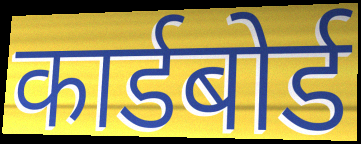
कार्डबोर्ड